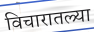
विचारातल्या